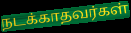
நடக்காதவர்கள்